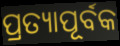
ପ୍ରତ୍ୟାପୂର୍ବକ